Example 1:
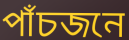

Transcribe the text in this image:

পাঁচজনে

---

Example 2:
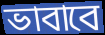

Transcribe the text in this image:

ভাবাবে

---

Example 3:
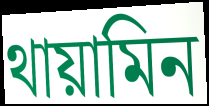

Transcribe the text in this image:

থায়ামিন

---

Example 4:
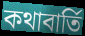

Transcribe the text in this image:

কথাবার্তি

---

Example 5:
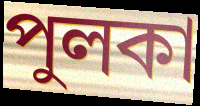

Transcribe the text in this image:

পুলকা